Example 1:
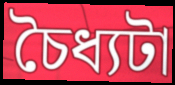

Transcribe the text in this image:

চৈধ্যটা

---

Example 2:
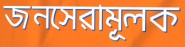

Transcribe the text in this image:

জনসেৱামূলক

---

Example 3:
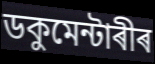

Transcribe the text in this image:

ডকুমেন্টাৰীৰ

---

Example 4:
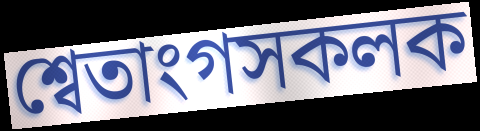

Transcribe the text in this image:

শ্বেতাংগসকলক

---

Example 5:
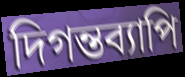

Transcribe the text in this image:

দিগন্তব্যাপি